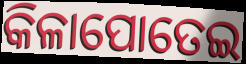
କିଳାପୋତେଇ